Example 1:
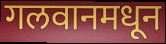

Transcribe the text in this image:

गलवानमधून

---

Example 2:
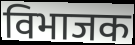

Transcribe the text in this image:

विभाजक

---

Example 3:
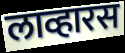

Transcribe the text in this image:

लाव्हारस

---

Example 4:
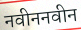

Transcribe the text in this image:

नवीननवीन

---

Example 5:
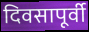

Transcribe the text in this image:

दिवसापूर्वी